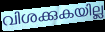
വിശക്കുകയില്ല